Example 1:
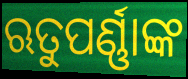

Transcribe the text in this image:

ଋତୁପର୍ଣ୍ଣାଙ୍କ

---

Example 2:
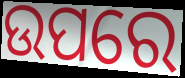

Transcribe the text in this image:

ଉପରେ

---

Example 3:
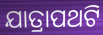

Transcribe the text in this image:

ଯାତ୍ରାପଥଟି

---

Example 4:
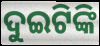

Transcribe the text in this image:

ଦୁଇଟିଙ୍କି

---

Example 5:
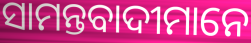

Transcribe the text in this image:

ସାମନ୍ତବାଦୀମାନେ